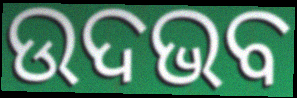
ଉଦଭବ